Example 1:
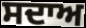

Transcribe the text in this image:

ਸਦਾਅ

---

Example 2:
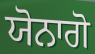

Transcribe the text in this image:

ਯੋਨਾਗੋ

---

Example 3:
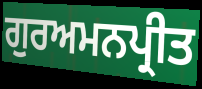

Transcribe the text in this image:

ਗੁਰਅਮਨਪ੍ਰੀਤ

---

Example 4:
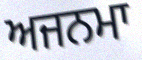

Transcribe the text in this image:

ਅਜਨਮਾ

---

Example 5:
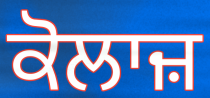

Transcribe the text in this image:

ਕੋਲਾਜ਼